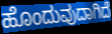
ಹೊಂದುವುದಾಗಿದೆ